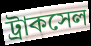
ট্রাকসেল